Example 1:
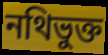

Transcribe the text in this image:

নথিভুক্ত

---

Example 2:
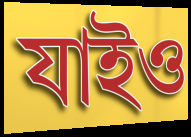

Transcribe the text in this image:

যাইও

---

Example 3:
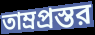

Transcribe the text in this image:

তাম্রপ্রস্তর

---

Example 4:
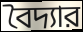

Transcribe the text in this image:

বৈদ্যার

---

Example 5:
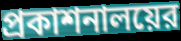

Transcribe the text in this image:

প্রকাশনালয়ের